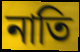
নাতি